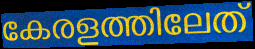
കേരളത്തിലേത്